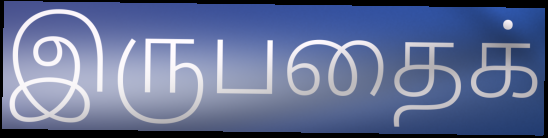
இருபதைக்